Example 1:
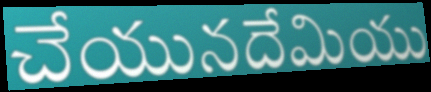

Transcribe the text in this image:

చేయునదేమియు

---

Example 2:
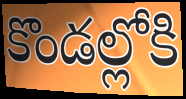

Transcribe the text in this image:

కొండల్లోకి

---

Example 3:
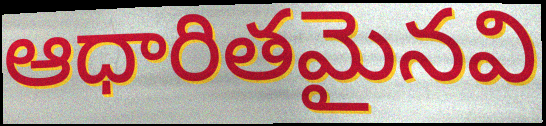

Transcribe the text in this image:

ఆధారితమైనవి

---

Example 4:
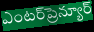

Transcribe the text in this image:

ఎంటర్‌ప్రెన్యూర్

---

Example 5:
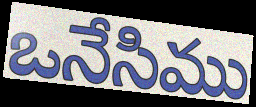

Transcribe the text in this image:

ఒనేసిము